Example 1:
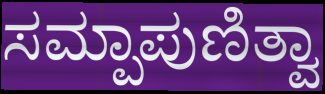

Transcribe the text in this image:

ಸಮ್ಪಾಪುಣಿತ್ವಾ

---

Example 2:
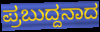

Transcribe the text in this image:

ಪ್ರಬುದ್ದನಾದ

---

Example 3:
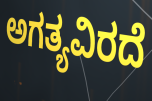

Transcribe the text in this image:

ಅಗತ್ಯವಿರದೆ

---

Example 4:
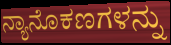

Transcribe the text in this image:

ನ್ಯಾನೊಕಣಗಳನ್ನು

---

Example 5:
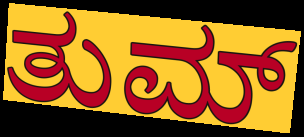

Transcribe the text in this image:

ತುಮ್